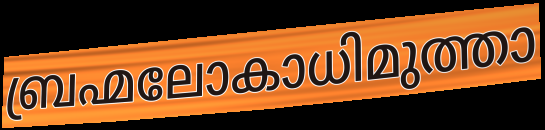
ബ്രഹ്മലോകാധിമുത്താ